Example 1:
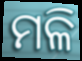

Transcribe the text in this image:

ମଳି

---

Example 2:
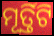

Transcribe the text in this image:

ମୂର୍ତ୍ତିଟି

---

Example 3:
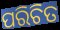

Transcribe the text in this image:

ପରିଚିତ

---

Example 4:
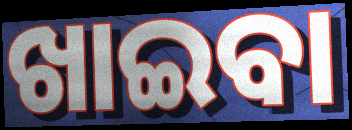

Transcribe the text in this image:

ଖାଇବା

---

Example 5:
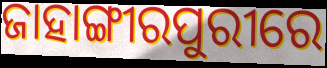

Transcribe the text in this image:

ଜାହାଙ୍ଗୀରପୁରୀରେ